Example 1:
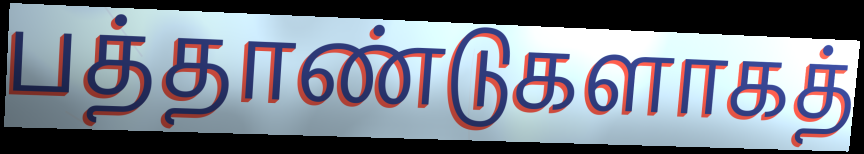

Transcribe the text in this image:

பத்தாண்டுகளாகத்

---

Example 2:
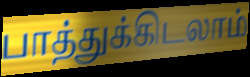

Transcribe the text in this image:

பாத்துக்கிடலாம்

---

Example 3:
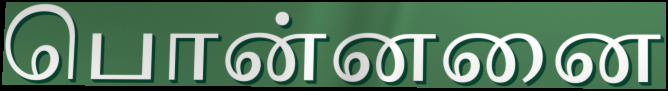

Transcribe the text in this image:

பொன்னனை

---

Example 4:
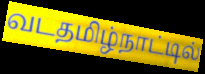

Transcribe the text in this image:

வடதமிழ்நாட்டில்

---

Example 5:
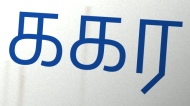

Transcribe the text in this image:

ககர